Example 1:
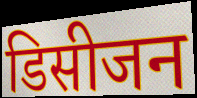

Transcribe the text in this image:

डिसीजन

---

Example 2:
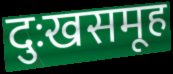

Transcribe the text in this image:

दुःखसमूह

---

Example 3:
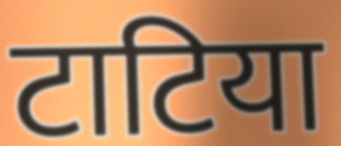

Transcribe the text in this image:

टाटिया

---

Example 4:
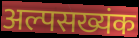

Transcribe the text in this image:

अल्पसख्यंक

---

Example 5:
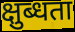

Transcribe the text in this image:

क्षुब्धता